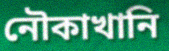
নৌকাখানি